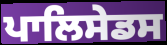
ਪਾਲਿਸੇਡਸ